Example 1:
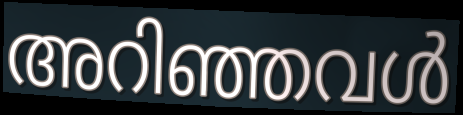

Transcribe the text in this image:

അറിഞ്ഞവൾ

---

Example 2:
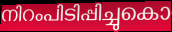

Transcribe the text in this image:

നിറംപിടിപ്പിച്ചുകൊ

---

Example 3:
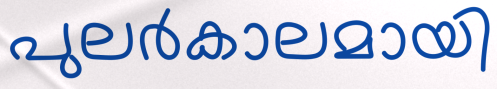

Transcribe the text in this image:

പുലർകാലമായി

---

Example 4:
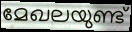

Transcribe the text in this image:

മേഖലയുണ്ട്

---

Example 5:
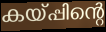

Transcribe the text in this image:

കയ്പ്പിന്റെ